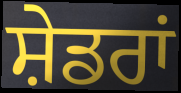
ਸ਼ੇਡਰਾਂ